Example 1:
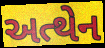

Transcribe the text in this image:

અત્થેન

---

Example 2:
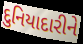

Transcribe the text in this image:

દુનિયાદારીને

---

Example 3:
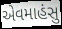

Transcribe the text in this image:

એવમાહંસુ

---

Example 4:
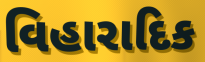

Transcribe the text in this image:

વિહારાદિક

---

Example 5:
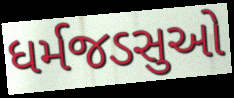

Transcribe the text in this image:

ધર્મજડસુઓ